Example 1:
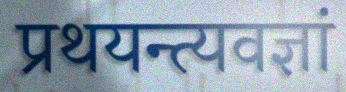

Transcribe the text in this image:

प्रथयन्त्यवज्ञां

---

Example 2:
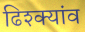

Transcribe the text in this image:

ढिश्क्यांव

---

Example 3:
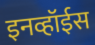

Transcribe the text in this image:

इनव्हॉईस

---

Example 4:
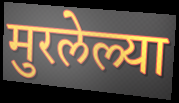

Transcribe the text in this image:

मुरलेल्या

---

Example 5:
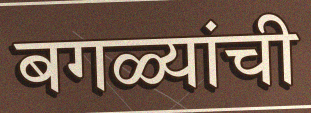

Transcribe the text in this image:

बगळ्यांची